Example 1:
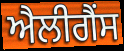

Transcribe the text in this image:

ਐਲੀਗੈਂਸ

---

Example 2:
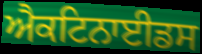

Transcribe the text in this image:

ਐਕਟਿਨਾਈਡਸ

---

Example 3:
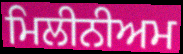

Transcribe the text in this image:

ਮਿਲੀਨੀਅਮ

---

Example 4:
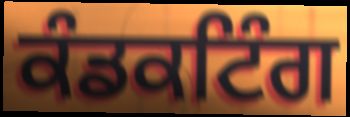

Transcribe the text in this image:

ਕੰਡਕਟਿੰਗ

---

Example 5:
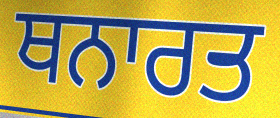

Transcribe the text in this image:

ਥਨਾਰਤ